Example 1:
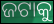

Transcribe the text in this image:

ଜଟାକୁ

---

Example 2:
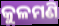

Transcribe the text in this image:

କୁଳମଣି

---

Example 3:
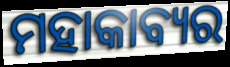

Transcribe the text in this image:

ମହାକାବ୍ୟର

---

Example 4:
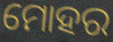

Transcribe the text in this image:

ମୋହର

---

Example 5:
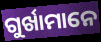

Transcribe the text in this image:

ଗୁର୍ଖାମାନେ